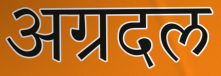
अग्रदल